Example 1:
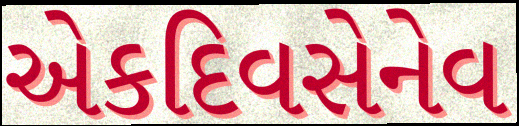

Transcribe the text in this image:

એકદિવસેનેવ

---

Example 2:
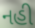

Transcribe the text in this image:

નહી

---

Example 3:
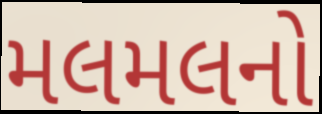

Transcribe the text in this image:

મલમલનો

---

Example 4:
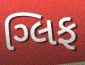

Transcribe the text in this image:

ગ્લિફ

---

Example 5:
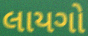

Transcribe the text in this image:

લાયગો